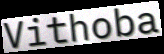
Vithoba